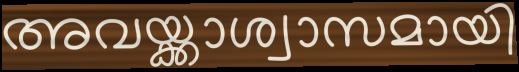
അവയ്ക്കാശ്വാസമായി